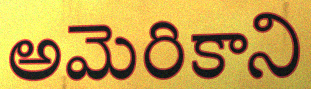
అమెరికాని